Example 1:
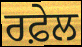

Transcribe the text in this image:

ਰਫ਼ੇਲ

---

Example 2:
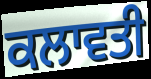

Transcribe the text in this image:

ਕਲਾਵਤੀ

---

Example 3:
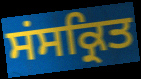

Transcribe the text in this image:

ਸਂਸਕ੍ਰਿਤ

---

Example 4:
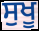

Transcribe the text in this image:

ਸੁਖੂ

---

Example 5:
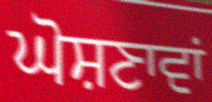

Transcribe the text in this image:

ਘੋਸ਼ਣਾਵਾਂ